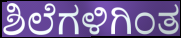
ಶಿಲೆಗಳಿಗಿಂತ